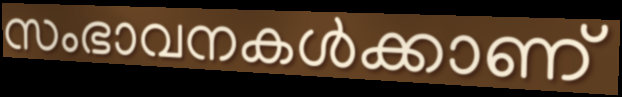
സംഭാവനകൾക്കാണ്